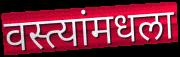
वस्त्यांमधला